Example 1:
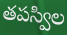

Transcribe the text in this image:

తపస్విల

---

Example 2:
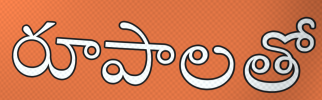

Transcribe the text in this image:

రూపాలతో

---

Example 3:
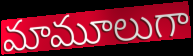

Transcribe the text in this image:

మామూలుగా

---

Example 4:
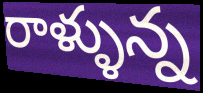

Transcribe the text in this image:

రాళ్ళున్న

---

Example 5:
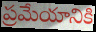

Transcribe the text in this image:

ప్రమేయానికి